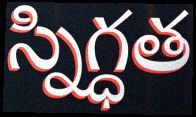
స్నిగ్ధత